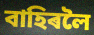
বাহিৰলৈ